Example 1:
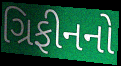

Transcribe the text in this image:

ગ્રિફીનનો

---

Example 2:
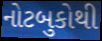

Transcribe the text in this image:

નોટબુકોથી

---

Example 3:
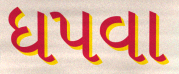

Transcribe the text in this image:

ધપવા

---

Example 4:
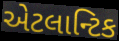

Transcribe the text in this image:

એટલાન્ટિક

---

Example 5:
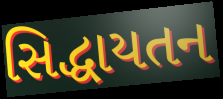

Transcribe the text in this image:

સિદ્ધાયતન